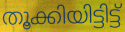
തൂക്കിയിട്ടിട്ട്